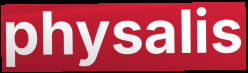
physalis